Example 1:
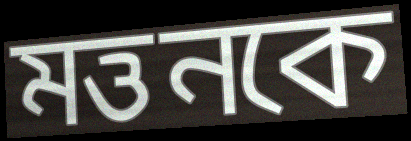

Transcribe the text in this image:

মত্তনকে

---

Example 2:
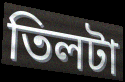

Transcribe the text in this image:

তিলটা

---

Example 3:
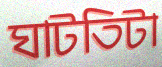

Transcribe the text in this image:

ঘাটতিটা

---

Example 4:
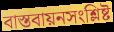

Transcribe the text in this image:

বাস্তবায়নসংশ্লিষ্ট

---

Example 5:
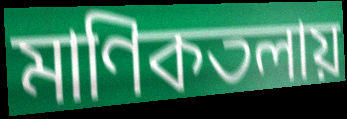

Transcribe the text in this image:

মাণিকতলায়